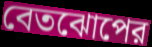
বেতঝোপের